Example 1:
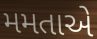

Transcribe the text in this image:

મમતાએ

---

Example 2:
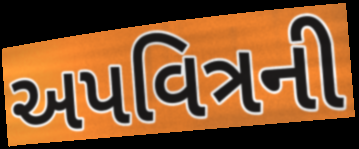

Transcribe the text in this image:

અપવિત્રની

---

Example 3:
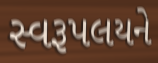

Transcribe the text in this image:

સ્વરૂપલયને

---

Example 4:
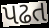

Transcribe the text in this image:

પઢત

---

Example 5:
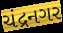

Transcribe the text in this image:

ચંદ્રનગર